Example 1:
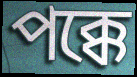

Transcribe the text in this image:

পক্কে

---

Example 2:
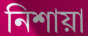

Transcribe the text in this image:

নিশায়া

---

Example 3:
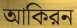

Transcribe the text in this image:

আকিরন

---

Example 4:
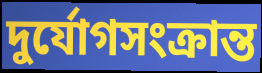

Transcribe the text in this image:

দুর্যোগসংক্রান্ত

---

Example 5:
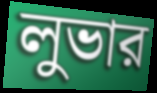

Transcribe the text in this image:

লুভার